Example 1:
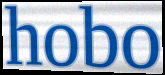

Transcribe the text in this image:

hobo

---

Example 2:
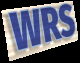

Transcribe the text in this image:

WRS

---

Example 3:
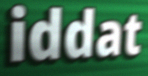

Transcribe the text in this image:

iddat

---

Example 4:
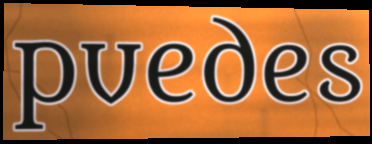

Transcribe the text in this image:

puedes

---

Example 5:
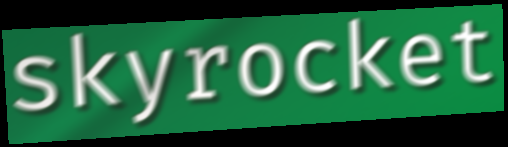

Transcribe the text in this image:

skyrocket